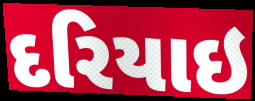
દરિયાઇ